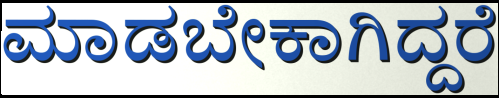
ಮಾಡಬೇಕಾಗಿದ್ದರೆ